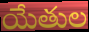
యేతుల